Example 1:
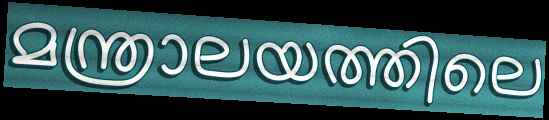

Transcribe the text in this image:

മന്ത്രാലയത്തിലെ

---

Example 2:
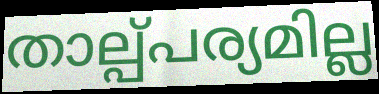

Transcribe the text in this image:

താല്പ്പര്യമില്ല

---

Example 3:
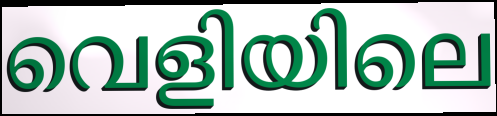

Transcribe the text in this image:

വെളിയിലെ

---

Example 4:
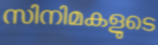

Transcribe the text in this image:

സിനിമകളുടെ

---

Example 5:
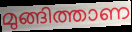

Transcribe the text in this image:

മുങ്ങിത്താണ